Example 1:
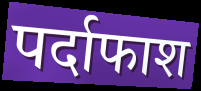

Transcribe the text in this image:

पर्दाफाश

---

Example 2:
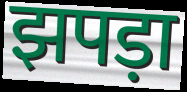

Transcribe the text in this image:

झपड़ा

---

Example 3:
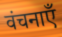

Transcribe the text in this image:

वंचनाएँ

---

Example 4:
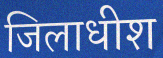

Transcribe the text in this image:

जिलाधीश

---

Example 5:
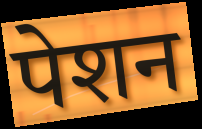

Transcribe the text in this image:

पेशन